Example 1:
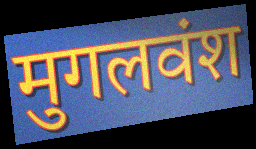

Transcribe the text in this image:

मुगलवंश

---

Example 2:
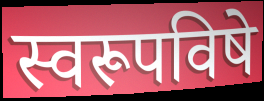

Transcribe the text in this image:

स्वरूपविषे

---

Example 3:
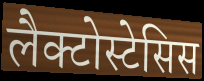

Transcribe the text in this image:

लैक्टोस्टेसिस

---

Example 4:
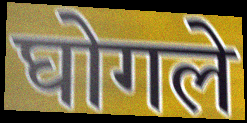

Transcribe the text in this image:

घोगले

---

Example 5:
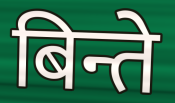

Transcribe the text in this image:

बिन्ते